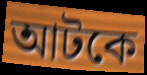
আটকে